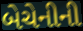
બેચેનીની